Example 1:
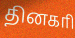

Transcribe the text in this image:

தினகரி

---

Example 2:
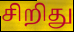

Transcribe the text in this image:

சிறிது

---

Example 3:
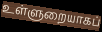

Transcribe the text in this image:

உள்ளுறையாகப்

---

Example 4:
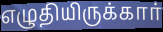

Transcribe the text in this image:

எழுதியிருக்கார்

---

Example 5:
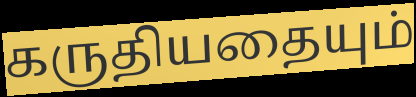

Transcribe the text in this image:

கருதியதையும்